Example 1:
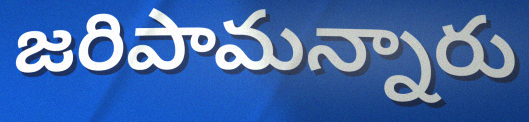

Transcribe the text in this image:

జరిపామన్నారు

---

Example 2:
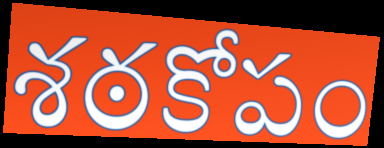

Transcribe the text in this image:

శఠకోపం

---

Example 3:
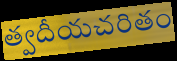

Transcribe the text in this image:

త్వదీయచరితం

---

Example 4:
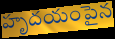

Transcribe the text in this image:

హృదయంపైన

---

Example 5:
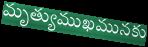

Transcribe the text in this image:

మృత్యుముఖమునకు